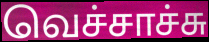
வெச்சாச்சு